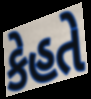
કેહતે